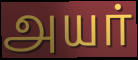
அயர்